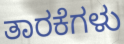
ತಾರಕೆಗಳು